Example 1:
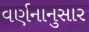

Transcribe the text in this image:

વર્ણનાનુસાર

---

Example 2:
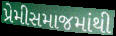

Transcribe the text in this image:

પ્રેમીસમાજમાંથી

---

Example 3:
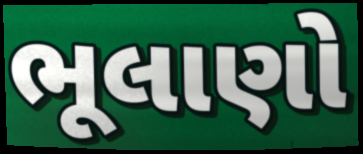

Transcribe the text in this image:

ભૂલાણો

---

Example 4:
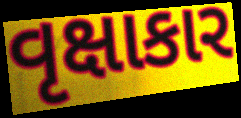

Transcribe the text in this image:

વૃક્ષાકાર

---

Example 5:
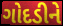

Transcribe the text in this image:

ગોદડીને